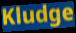
Kludge